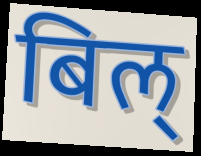
बिल्